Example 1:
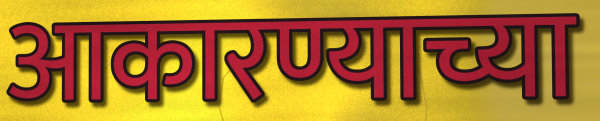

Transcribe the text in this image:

आकारण्याच्या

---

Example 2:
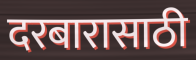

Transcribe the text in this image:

दरबारासाठी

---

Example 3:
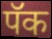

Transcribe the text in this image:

पॅक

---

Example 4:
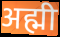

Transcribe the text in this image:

अह्मी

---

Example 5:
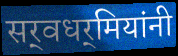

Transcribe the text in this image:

सर्वधर्मियांनी